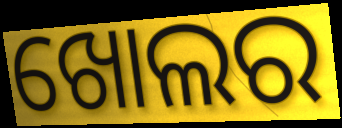
ଖୋଲର